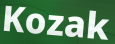
Kozak